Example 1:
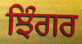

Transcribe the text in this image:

ਝਿੰਗਰ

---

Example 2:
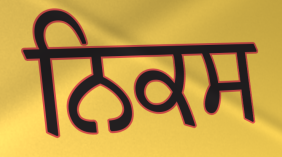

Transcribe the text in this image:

ਨਿਕਸ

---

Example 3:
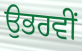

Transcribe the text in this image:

ਉਭਰਵੀਂ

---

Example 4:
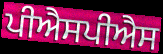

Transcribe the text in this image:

ਪੀਐਸਪੀਐਸ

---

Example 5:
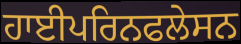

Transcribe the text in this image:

ਹਾਈਪਰਿਨਫਲੇਸਨ